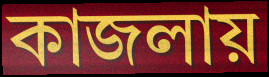
কাজলায়